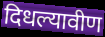
दिधल्यावीण